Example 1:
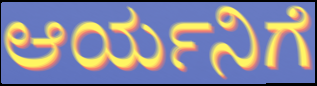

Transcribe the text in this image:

ಆರ್ಯನಿಗೆ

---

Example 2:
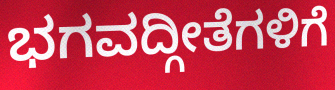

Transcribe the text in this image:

ಭಗವದ್ಗೀತೆಗಳಿಗೆ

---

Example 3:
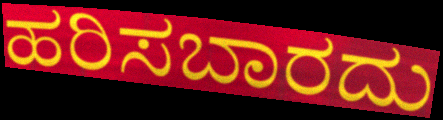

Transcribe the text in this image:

ಹರಿಸಬಾರದು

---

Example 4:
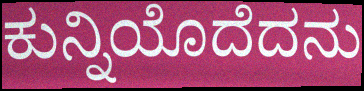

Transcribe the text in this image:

ಕುನ್ನಿಯೊದೆದನು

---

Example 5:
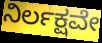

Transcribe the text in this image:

ನಿರ್ಲಕ್ಷವೇ